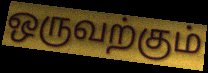
ஒருவற்கும்